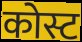
कोस्ट